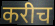
करीच